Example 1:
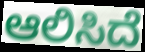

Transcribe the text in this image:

ಆಲಿಸಿದೆ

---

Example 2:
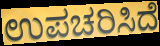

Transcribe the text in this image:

ಉಪಚರಿಸಿದೆ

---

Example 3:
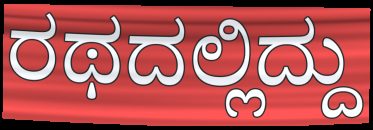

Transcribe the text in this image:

ರಥದಲ್ಲಿದ್ದು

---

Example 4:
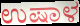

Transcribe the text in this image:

ಉಷಾಳ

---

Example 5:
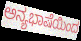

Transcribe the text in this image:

ಅನ್ಯಭಾಷೆಯಿಂದ